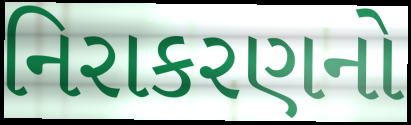
નિરાકરણનો